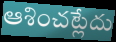
ఆశించట్లేదు